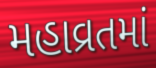
મહાવ્રતમાં